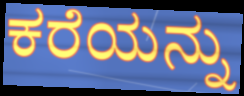
ಕರೆಯನ್ನು